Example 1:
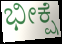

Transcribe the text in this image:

ಭೀಕ್ಷೆ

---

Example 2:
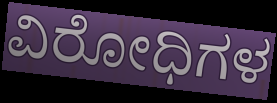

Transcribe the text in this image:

ವಿರೋಧಿಗಳ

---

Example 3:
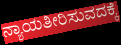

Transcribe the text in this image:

ನ್ಯಾಯತೀರಿಸುವದಕ್ಕೆ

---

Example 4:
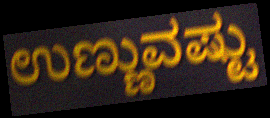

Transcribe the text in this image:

ಉಣ್ಣುವಷ್ಟು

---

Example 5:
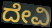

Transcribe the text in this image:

ದೇವಿ